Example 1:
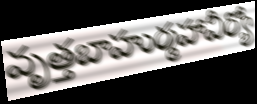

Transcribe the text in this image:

వృత్తబాహుర్మహావీర్యో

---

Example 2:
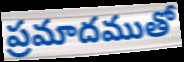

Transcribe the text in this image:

ప్రమాదముతో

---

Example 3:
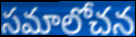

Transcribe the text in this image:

సమాలోచన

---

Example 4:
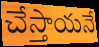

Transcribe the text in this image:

చేస్తాయనే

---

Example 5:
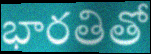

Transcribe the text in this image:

భారతితో